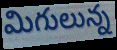
మిగులున్న